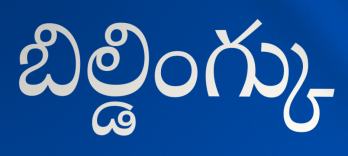
బిల్డింగ్కు